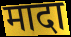
मादा